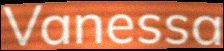
Vanessa